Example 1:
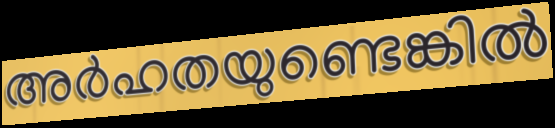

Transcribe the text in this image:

അർഹതയുണ്ടെങ്കിൽ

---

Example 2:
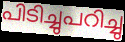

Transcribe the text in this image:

പിടിച്ചുപറിച്ചു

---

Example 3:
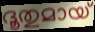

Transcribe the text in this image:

ദൂതുമായ്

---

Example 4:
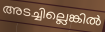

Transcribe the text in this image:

അടച്ചില്ലെങ്കിൽ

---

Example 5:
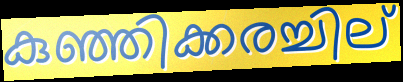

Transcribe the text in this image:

കുഞ്ഞിക്കരച്ചില്